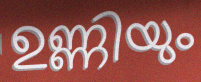
ഉണ്ണിയും